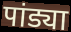
पांड्या